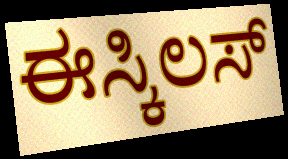
ಈಸ್ಕಿಲಸ್